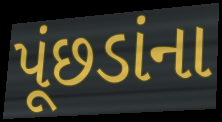
પૂંછડાંના